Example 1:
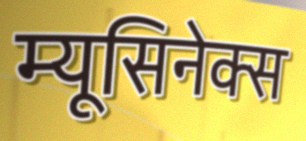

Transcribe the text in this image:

म्यूसिनेक्स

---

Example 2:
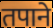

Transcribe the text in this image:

तपाने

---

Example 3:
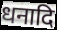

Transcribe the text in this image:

धनादि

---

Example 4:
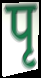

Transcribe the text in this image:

पृ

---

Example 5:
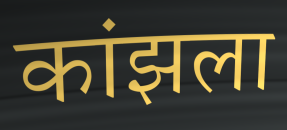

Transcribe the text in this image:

कांझला